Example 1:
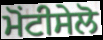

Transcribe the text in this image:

ਮੋਂਟੀਸੇਲੋ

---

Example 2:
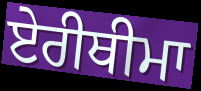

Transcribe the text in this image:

ਏਰੀਥੀਮਾ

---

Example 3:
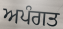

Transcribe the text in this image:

ਅਪੰਗਤ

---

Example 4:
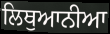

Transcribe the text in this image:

ਲਿਥੁਆਨੀਆ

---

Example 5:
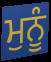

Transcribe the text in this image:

ਮੁਨੂੰ